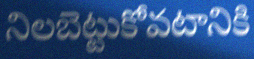
నిలబెట్టుకోవటానికి